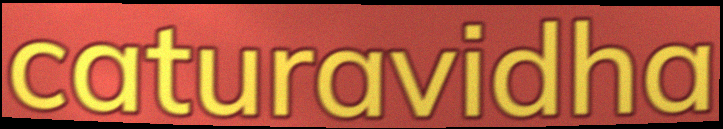
caturavidha